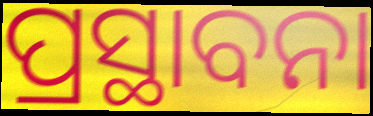
ପ୍ରସ୍ଥାବନା